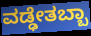
ವಡ್ಢೇತಬ್ಬಾ